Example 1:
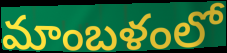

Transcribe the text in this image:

మాంబళంలో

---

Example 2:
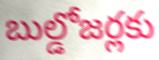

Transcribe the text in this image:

బుల్డోజర్లకు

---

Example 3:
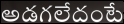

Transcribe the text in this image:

అడగలేదంటే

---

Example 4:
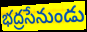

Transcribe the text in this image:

భద్రసేనుండు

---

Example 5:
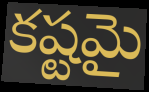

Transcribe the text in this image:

కష్టమై